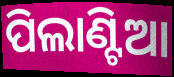
ପିଲାଣ୍ଟିଆ